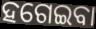
ହଗେଇବା